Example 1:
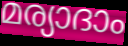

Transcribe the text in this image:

മര്യാദാം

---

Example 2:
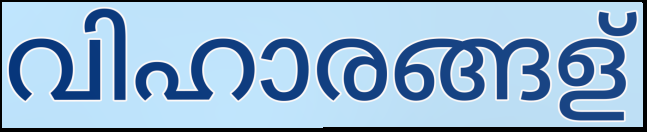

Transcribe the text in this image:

വിഹാരങ്ങള്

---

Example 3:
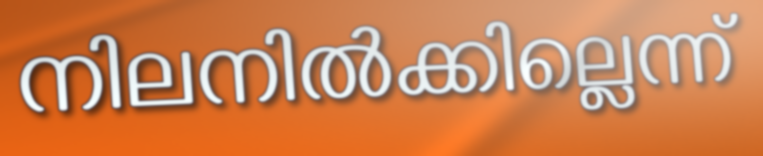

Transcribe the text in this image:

നിലനിൽക്കില്ലെന്ന്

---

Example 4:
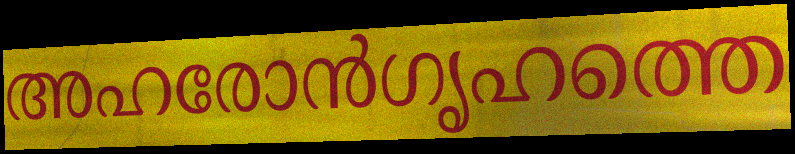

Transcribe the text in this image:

അഹരോൻഗൃഹത്തെ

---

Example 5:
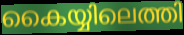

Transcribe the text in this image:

കൈയ്യിലെത്തി